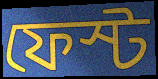
ফেস্ট